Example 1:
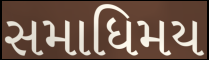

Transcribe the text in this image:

સમાધિમય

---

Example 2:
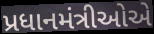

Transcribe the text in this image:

પ્રધાનમંત્રીઓએ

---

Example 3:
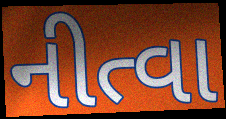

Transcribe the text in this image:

નીત્વા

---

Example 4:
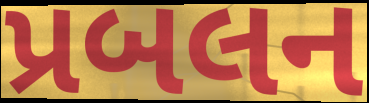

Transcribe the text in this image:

પ્રબલન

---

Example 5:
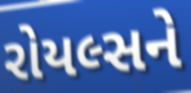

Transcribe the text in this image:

રોયલ્સને